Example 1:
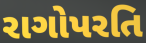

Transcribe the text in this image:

રાગોપરતિ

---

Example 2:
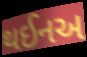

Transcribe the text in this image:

થઈનઅ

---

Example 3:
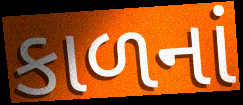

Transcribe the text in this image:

કાળનાં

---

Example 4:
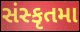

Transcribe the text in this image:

સંસ્કૃતમા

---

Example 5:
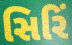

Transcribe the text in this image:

સિરિં